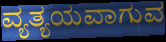
ವ್ಯತ್ಯಯವಾಗುವ